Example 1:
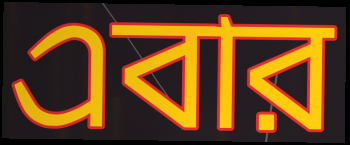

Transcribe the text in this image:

এবার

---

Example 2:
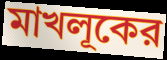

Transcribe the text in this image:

মাখলূকের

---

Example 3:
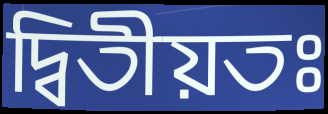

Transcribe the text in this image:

দ্বিতীয়তঃ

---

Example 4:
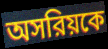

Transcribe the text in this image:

অসরিয়কে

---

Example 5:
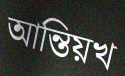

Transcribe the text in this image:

আন্তিয়খ